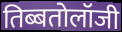
तिब्बतोलॉजी